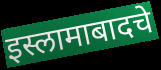
इस्लामाबादचे